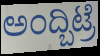
ಅಂದ್ಬಿಟ್ರೆ